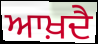
ਆਖ਼ਦੈ